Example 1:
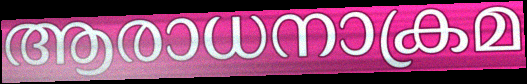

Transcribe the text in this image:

ആരാധനാക്രമ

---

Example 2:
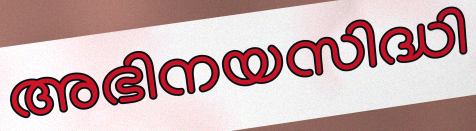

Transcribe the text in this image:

അഭിനയസിദ്ധി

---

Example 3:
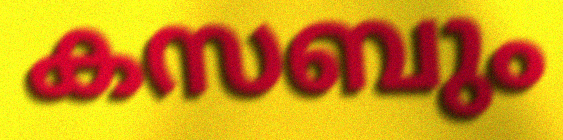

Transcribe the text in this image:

കസബും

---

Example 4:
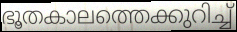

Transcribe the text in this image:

ഭൂതകാലത്തെക്കുറിച്ച്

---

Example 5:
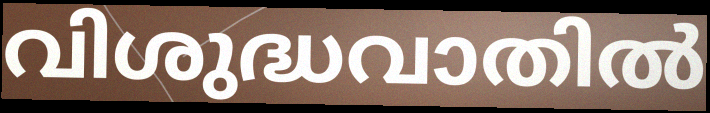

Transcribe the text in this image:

വിശുദ്ധവാതിൽ